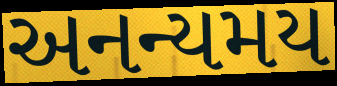
અનન્યમય